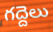
గద్దెలు